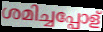
ശമിച്ചപ്പോള്